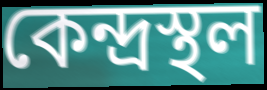
কেন্দ্ৰস্থল